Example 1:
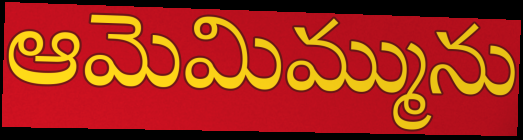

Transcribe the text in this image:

ఆమెమిమ్మును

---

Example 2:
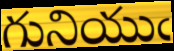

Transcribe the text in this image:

గునియుఁ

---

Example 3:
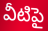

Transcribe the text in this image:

వీటిపై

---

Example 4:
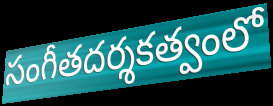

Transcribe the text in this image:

సంగీతదర్శకత్వంలో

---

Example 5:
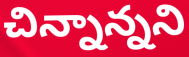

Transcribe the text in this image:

చిన్నాన్నని